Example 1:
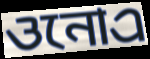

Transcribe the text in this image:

ওনোএ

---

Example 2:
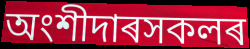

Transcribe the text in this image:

অংশীদাৰসকলৰ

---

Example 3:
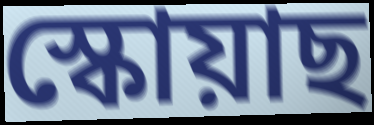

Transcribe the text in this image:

স্কোয়াছ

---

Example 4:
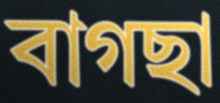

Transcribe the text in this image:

বাগছা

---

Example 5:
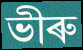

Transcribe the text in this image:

ভীৰু